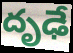
దృఢే